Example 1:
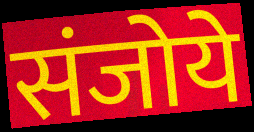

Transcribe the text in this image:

संजोये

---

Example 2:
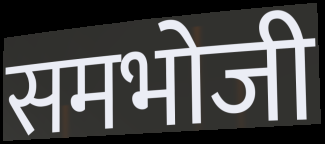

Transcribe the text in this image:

समभोजी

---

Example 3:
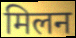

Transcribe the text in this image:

मिलन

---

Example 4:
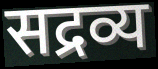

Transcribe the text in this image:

सद्रव्य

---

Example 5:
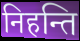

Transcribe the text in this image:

निहन्ति